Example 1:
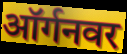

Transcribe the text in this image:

ऑर्गनवर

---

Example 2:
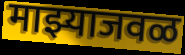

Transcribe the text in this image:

माझ्याजवळ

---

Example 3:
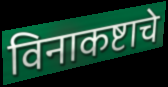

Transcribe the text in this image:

विनाकष्टाचे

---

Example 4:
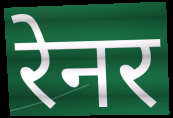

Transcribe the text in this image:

रेनर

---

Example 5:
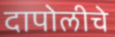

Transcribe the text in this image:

दापोलीचे